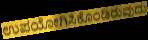
ಉಪಯೋಗಿಸಿಕೊಂಡಿರುವುದು